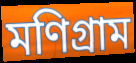
মণিগ্রাম